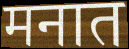
मनात